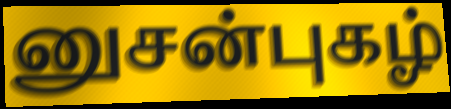
னுசன்புகழ்